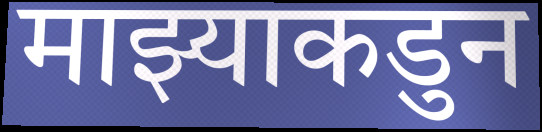
माझ्याकडुन